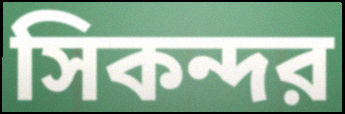
সিকন্দর